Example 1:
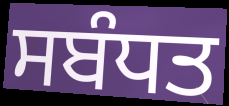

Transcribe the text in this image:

ਸਬੰਧਤ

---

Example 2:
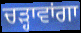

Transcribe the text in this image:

ਚੜ੍ਹਾਵਾਂਗਾ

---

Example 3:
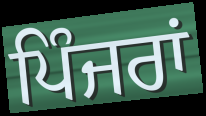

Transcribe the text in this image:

ਪਿੰਜਰਾਂ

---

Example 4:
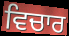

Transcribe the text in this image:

ਵਿਚਾਰ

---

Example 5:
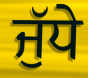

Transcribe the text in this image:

ਜੁੱਧੇ